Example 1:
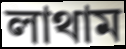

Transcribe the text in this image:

লাথাম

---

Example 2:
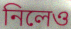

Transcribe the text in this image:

নিলেও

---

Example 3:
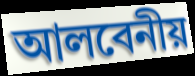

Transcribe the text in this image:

আলবেনীয়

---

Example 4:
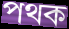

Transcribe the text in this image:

পথক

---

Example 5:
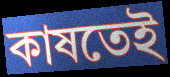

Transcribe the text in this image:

কাষতেই